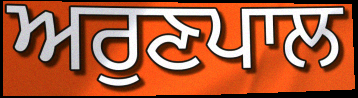
ਅਰੁਣਪਾਲ